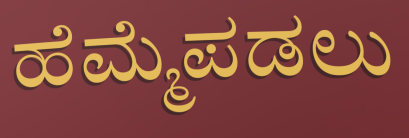
ಹೆಮ್ಮೆಪಡಲು